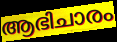
ആഭിചാരം